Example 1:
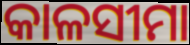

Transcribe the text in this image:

କାଳସୀମା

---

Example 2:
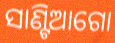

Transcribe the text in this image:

ସାଣ୍ଟିଆଗୋ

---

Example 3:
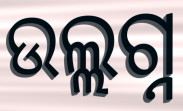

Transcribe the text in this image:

ଉଲ୍ଲଗ୍ନ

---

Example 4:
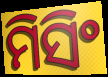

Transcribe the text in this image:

ମିସିଂ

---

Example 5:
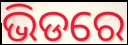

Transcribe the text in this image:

ଭିଡରେ